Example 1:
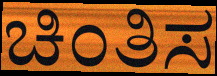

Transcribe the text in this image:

ಚಿಂತಿಸ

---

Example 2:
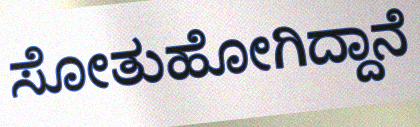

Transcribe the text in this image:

ಸೋತುಹೋಗಿದ್ದಾನೆ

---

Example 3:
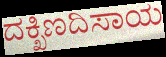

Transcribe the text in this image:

ದಕ್ಖಿಣದಿಸಾಯ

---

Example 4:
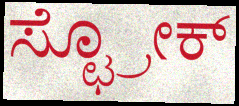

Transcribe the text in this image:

ಸ್ಟ್ರೋಕ್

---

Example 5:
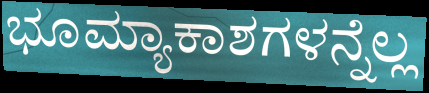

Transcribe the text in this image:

ಭೂಮ್ಯಾಕಾಶಗಳನ್ನೆಲ್ಲ